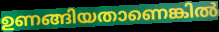
ഉണങ്ങിയതാണെങ്കിൽ